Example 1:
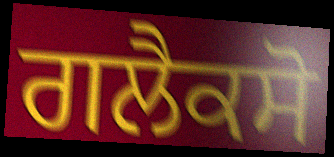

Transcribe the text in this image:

ਗਲੈਕਸੋ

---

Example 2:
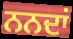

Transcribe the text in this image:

ਨਨਦਾਂ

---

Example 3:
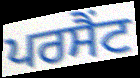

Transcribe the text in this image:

ਪਰਸੈਂਟ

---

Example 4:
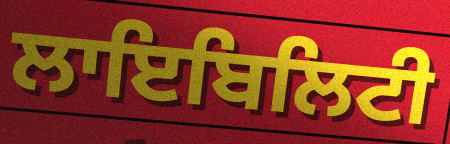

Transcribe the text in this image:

ਲਾਇਬਿਲਿਟੀ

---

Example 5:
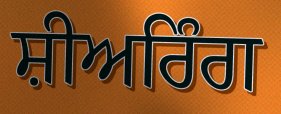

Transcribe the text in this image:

ਸ਼ੀਅਰਿੰਗ